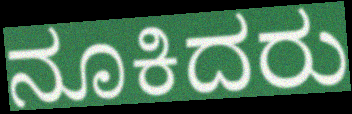
ನೂಕಿದರು